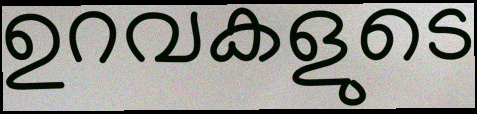
ഉറവകളുടെ